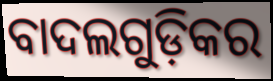
ବାଦଲଗୁଡ଼ିକର